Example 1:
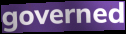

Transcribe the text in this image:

governed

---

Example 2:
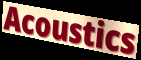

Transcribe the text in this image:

Acoustics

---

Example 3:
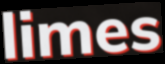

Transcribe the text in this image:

limes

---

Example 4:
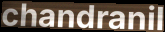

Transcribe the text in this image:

chandranil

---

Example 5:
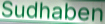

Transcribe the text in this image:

Sudhaben